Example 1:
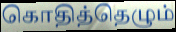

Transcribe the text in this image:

கொதித்தெழும்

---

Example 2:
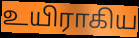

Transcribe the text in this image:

உயிராகிய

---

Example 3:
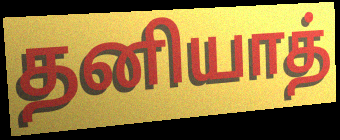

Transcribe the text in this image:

தனியாத்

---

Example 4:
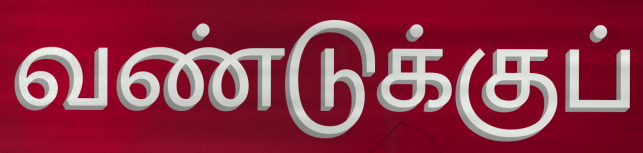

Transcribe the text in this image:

வண்டுக்குப்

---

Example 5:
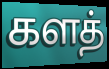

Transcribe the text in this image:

களத்